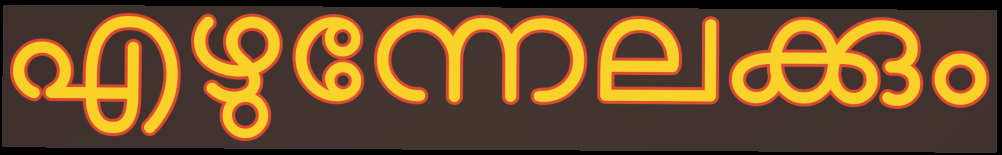
എഴുന്നേലക്കും